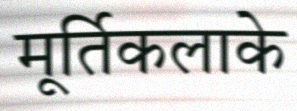
मूर्तिकलाके